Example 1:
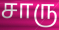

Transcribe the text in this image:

சாரு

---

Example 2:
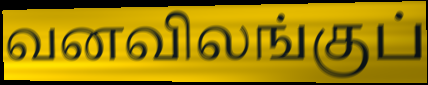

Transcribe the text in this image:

வனவிலங்குப்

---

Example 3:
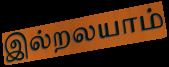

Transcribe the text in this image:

இல்றலயாம்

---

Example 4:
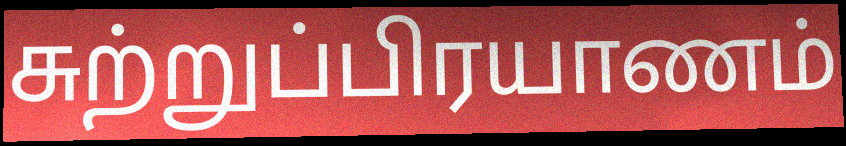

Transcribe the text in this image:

சுற்றுப்பிரயாணம்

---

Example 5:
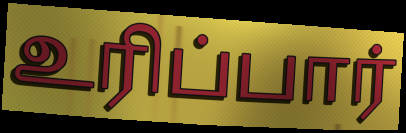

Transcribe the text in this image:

உரிப்பார்